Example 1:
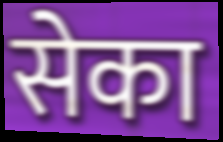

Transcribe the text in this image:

सेका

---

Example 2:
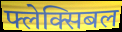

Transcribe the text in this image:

फ्लेक्सिबल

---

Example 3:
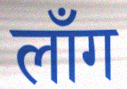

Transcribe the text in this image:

लाँग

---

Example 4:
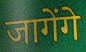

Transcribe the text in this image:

जागेंगे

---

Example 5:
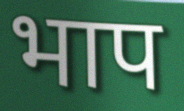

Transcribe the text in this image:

भाप